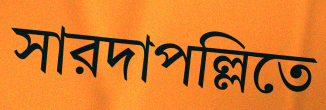
সারদাপল্লিতে